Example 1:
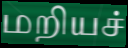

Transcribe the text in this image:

மறியச்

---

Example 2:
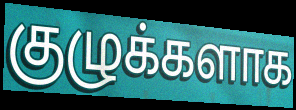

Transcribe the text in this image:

குழுக்களாக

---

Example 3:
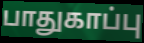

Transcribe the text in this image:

பாதுகாப்பு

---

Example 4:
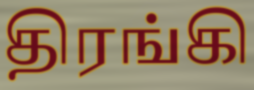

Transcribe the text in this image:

திரங்கி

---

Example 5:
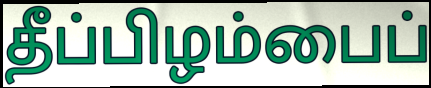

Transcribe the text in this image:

தீப்பிழம்பைப்